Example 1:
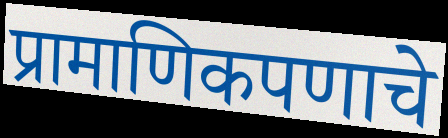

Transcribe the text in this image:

प्रामाणिकपणाचे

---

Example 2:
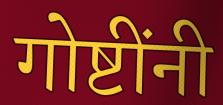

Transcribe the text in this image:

गोष्टींनी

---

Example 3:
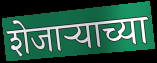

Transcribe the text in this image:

शेजाऱ्याच्या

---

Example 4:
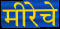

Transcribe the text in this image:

मीरेचे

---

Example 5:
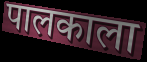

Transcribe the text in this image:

पालकाला